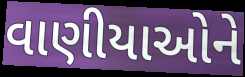
વાણીયાઓને